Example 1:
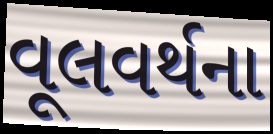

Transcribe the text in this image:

વૂલવર્થના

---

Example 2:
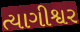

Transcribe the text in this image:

ત્યાગીશ્વર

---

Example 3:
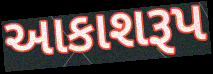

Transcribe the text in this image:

આકાશરૂપ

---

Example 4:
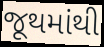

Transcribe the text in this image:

જૂથમાંથી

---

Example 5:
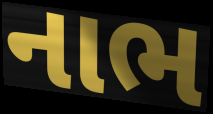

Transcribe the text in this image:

નાભ